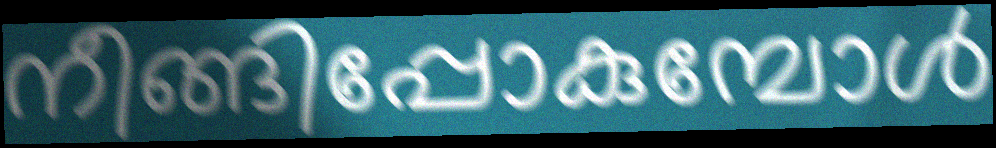
നീങ്ങിപ്പോകുമ്പോൾ